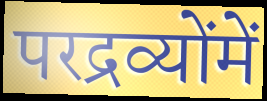
परद्रव्योंमें